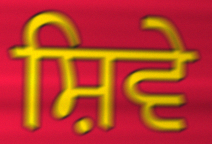
ਸ਼ਿਵੇ